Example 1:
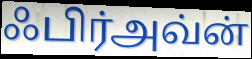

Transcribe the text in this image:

ஃபிர்அவ்ன்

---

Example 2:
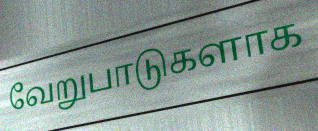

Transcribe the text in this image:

வேறுபாடுகளாக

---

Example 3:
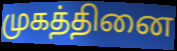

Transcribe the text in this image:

முகத்தினை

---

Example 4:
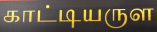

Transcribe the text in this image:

காட்டியருள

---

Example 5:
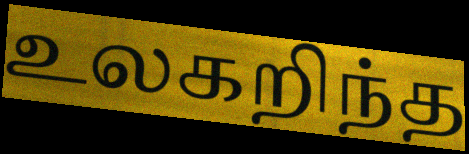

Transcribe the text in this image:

உலகறிந்த